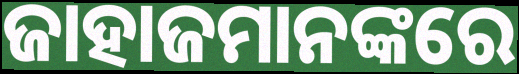
ଜାହାଜମାନଙ୍କରେ